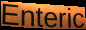
Enteric